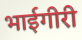
भाईगीरी